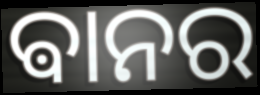
ଵାନର